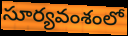
సూర్యవంశంలో